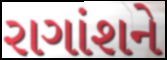
રાગાંશને